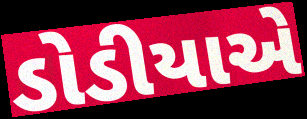
ડોડીયાએ